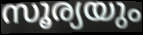
സൂര്യയും